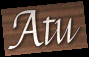
Atu